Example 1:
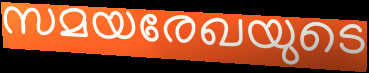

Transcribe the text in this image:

സമയരേഖയുടെ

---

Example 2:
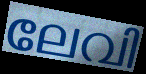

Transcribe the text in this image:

ലേവി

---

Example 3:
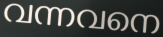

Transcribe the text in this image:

വന്നവനെ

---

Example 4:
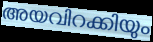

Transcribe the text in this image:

അയവിറക്കിയും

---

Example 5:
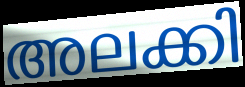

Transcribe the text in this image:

അലക്കി